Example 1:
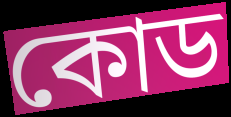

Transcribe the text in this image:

কোড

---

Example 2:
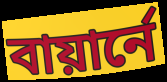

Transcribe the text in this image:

বায়ার্নে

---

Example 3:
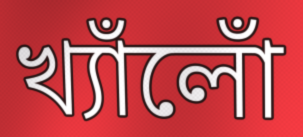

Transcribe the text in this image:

খ্যাঁলোঁ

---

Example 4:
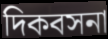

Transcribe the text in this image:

দিকবসনা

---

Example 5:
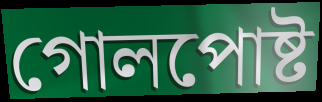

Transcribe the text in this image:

গোলপোষ্ট